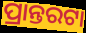
ପ୍ରାନ୍ତରଟା